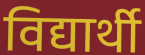
विद्यार्थी